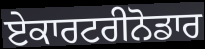
ਏਕਾਰਟਰੀਨੋਡਾਰ